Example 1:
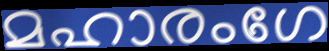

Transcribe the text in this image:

മഹാരംഗേ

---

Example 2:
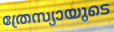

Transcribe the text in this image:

ത്രേസ്യായുടെ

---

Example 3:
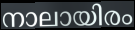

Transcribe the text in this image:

നാലായിരം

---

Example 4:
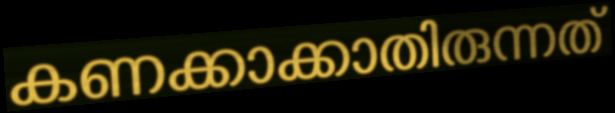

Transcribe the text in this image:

കണക്കാക്കാതിരുന്നത്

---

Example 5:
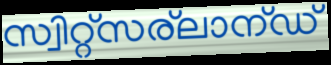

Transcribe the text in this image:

സ്വിറ്റ്സര്ലാന്ഡ്